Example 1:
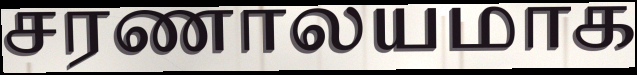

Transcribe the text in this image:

சரணாலயமாக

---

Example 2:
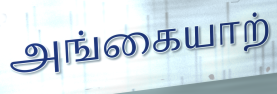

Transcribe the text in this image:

அங்கையாற்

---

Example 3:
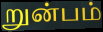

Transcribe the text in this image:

றுன்பம்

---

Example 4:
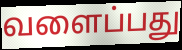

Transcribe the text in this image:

வளைப்பது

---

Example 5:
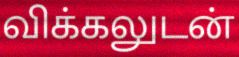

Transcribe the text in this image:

விக்கலுடன்